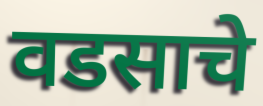
वडसाचे